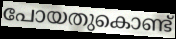
പോയതുകൊണ്ട്